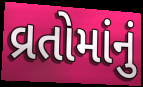
વ્રતોમાંનું